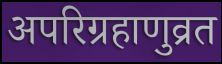
अपरिग्रहाणुव्रत